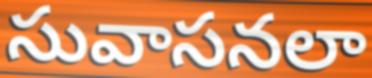
సువాసనలా